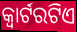
କ୍ୱାର୍ଟରଟିଏ